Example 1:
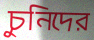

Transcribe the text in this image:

চুনিদের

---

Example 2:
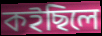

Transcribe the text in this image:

কইছিলে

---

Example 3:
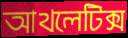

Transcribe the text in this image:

আথলেটিক্স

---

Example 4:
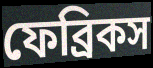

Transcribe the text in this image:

ফেব্রিকস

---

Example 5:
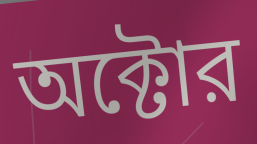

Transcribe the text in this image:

অক্টোর